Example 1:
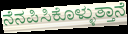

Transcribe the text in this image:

ನೆನಪಿಸಿಕೊಳ್ಳುತ್ತಾನೆ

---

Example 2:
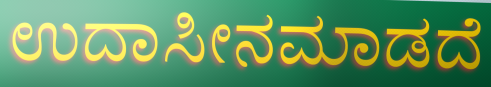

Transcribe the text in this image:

ಉದಾಸೀನಮಾಡದೆ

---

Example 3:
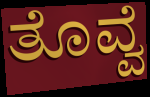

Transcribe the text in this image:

ತೊವ್ವೆ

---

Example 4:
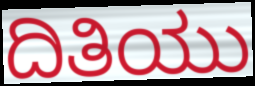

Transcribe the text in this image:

ದಿತಿಯು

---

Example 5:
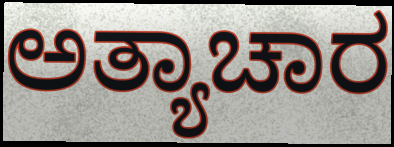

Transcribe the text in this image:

ಅತ್ಯಾಚಾರ